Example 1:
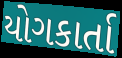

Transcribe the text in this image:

યોગકાર્તા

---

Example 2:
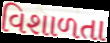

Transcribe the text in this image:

વિશાળતા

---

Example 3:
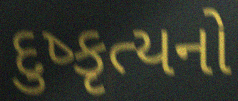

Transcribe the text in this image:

દુષ્કૃત્યનો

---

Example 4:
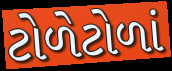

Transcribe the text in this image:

ટોળેટોળાં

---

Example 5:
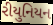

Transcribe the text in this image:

રીયુનિયન